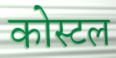
कोस्टल